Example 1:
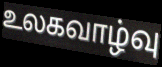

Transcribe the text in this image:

உலகவாழ்வு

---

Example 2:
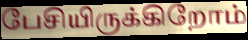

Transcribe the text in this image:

பேசியிருக்கிறோம்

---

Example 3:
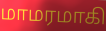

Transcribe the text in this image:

மாமரமாகி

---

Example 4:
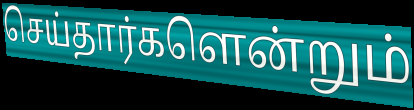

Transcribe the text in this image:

செய்தார்களென்றும்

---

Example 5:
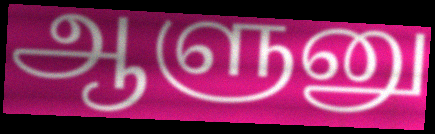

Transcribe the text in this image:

ஆளுனு